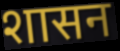
शासन